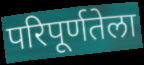
परिपूर्णतेला